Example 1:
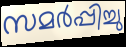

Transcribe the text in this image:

സമർപ്പിച്ചു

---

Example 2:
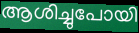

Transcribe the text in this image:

ആശിച്ചുപോയി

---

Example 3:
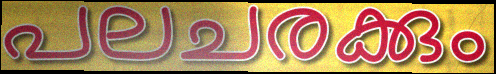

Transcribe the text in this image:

പലചരക്കും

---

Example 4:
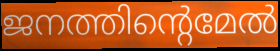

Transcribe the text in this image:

ജനത്തിന്റെമേൽ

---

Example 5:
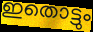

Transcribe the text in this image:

ഇതൊട്ടും